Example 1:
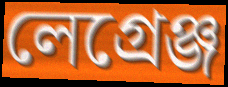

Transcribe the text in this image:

লেগ্রেঞ্জ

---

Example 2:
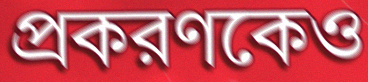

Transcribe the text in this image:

প্রকরণকেও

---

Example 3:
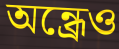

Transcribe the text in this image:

অন্ধ্রেও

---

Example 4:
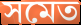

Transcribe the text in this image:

সমেত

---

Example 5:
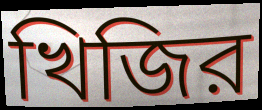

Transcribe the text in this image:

খিজির